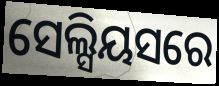
ସେଲ୍ସିୟସରେ